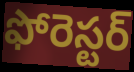
ఫోరెస్టర్